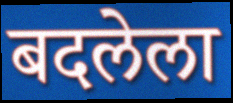
बदलेला